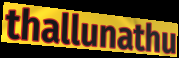
thallunathu